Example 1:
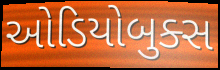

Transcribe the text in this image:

ઓડિયોબુક્સ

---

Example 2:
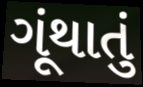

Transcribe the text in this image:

ગૂંથાતું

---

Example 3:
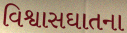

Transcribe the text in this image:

વિશ્વાસઘાતના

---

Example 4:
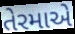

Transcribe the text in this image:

તેરમાએ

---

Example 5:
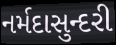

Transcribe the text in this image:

નર્મદાસુન્દરી